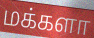
மக்களா